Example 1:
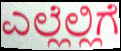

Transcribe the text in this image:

ಎಲ್ಲೆಲ್ಲಿಗೆ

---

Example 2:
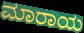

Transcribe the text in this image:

ಮಾರಾಯ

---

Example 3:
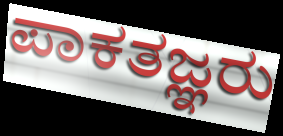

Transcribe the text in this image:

ಪಾಕತಜ್ಞರು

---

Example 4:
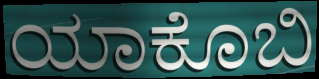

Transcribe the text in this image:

ಯಾಕೊಬಿ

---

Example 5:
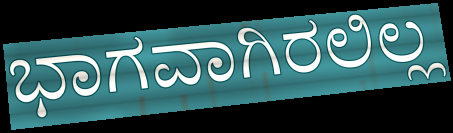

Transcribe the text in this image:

ಭಾಗವಾಗಿರಲಿಲ್ಲ